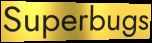
Superbugs